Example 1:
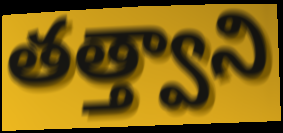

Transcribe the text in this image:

తత్త్వాని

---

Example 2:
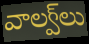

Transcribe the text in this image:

వాల్వ్‌లు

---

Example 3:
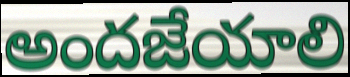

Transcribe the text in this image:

అందజేయాలి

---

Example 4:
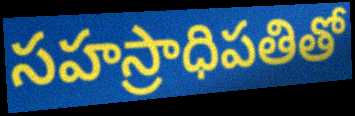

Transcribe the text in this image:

సహస్రాధిపతితో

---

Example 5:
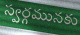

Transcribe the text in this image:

స్వర్గమునకు